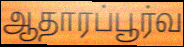
ஆதாரப்பூர்வ